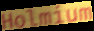
Holmium